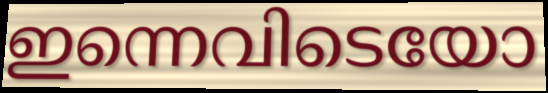
ഇന്നെവിടെയോ